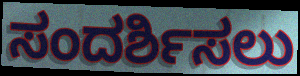
ಸಂದರ್ಶಿಸಲು